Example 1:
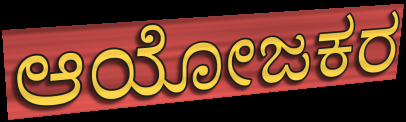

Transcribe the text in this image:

ಆಯೋಜಕರ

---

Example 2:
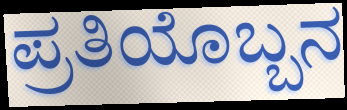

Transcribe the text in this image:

ಪ್ರತಿಯೊಬ್ಬನ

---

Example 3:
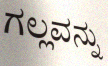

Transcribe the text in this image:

ಗಲ್ಲವನ್ನು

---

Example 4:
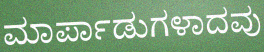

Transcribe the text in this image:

ಮಾರ್ಪಾಡುಗಳಾದವು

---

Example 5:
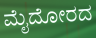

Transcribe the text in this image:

ಮೈದೋರದ